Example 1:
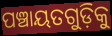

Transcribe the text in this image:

ପଞ୍ଚାୟତଗୁଡ଼ିକୁ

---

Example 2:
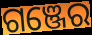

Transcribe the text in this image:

ଗଞ୍ଜେର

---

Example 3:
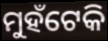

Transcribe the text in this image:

ମୁହଁଟେକି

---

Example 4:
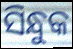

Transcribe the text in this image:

ସିନ୍ଧୁକ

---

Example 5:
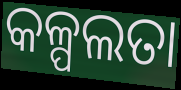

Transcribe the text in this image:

କଳ୍ପଲତା